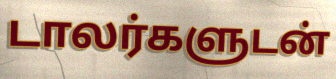
டாலர்களுடன்